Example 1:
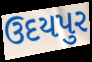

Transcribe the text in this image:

ઉદયપુર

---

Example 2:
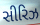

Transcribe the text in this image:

સીરિઝ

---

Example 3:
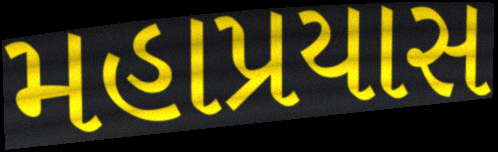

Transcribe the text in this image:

મહાપ્રયાસ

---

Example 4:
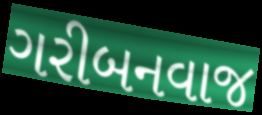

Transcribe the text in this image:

ગરીબનવાજ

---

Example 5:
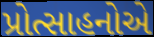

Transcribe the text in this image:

પ્રોત્સાહનોએ